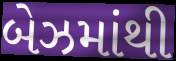
બેઝમાંથી